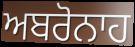
ਅਬਰੋਨਾਹ